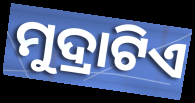
ମୁଦ୍ରାଟିଏ